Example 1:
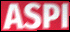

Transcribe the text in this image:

ASPI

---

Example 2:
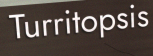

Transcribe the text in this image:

Turritopsis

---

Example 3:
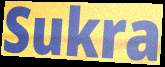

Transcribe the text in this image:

Sukra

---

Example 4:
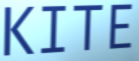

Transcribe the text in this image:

KITE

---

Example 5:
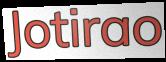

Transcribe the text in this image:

Jotirao